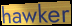
hawker